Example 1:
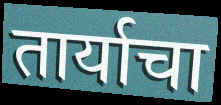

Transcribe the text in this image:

तार्याचा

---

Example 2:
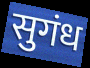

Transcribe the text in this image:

सुगंध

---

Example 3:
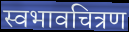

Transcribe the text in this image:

स्वभावचित्रण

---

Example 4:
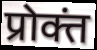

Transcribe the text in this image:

प्रोक्तं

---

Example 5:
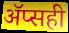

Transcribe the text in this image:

ॲप्सही